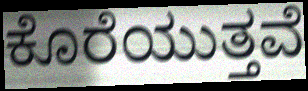
ಕೊರೆಯುತ್ತವೆ